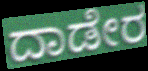
ದಾಡೇರ